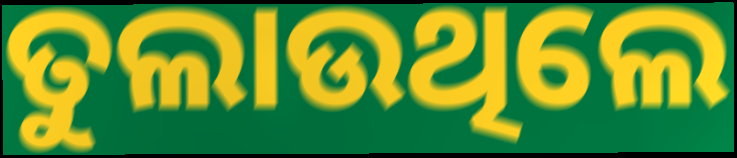
ତୁଲାଉଥିଲେ